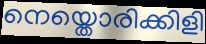
നെയ്തൊരിക്കിളി